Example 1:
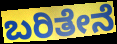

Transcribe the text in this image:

ಬರಿತೇನೆ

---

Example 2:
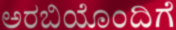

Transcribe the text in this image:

ಅರಬಿಯೊಂದಿಗೆ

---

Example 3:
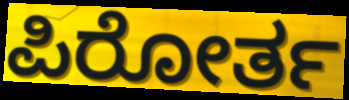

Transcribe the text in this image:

ಪಿರೋರ್ತ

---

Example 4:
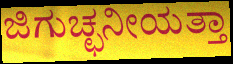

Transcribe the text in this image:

ಜಿಗುಚ್ಛನೀಯತ್ತಾ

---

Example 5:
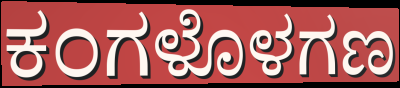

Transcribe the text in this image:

ಕಂಗಳೊಳಗಣ